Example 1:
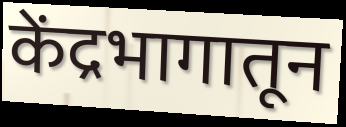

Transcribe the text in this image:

केंद्रभागातून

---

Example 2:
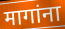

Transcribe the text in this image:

मागांना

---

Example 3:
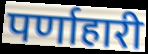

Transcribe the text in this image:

पर्णाहारी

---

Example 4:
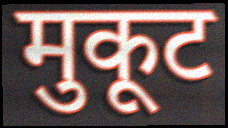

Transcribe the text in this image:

मुकूट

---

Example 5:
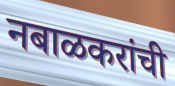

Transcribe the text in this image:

नबाळकरांची